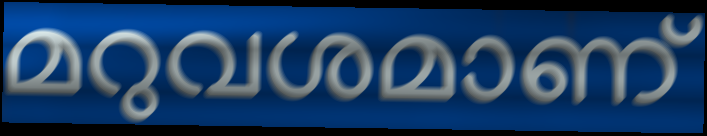
മറുവശമാണ്